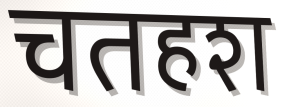
चतहश